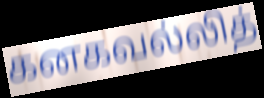
கனகவல்லித்